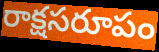
రాక్షసరూపం